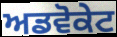
ਅਡਵੋਕੇਟ